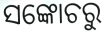
ସଙ୍କୋଚରୁ